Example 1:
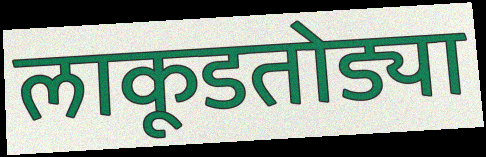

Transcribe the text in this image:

लाकूडतोड्या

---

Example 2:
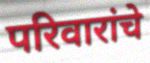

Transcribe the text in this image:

परिवारांचे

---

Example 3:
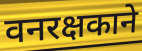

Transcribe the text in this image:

वनरक्षकाने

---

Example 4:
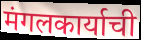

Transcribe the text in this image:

मंगलकार्याची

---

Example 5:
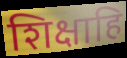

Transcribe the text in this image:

शिक्षाहि